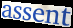
assent